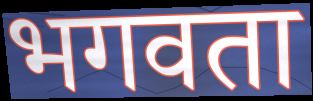
भगवता